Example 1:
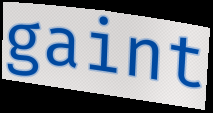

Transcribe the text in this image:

gaint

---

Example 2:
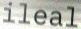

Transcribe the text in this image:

ileal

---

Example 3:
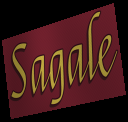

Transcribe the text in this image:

Sagale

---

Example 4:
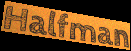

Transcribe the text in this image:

Halfman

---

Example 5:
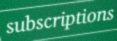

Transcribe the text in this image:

subscriptions